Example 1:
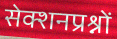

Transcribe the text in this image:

सेक्शनप्रश्नों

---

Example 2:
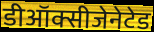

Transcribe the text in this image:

डीऑक्सीजेनेटेड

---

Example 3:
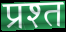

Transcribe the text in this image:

प्रश्त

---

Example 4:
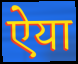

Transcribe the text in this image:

ऐया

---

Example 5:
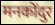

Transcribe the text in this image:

मनकोंदुर